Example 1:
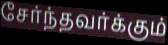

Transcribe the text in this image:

சேர்ந்தவர்க்கும்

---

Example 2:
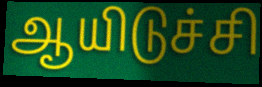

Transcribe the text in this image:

ஆயிடுச்சி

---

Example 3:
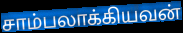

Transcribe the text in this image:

சாம்பலாக்கியவன்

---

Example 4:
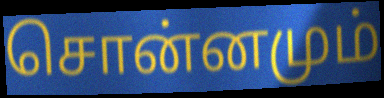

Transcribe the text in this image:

சொன்னமும்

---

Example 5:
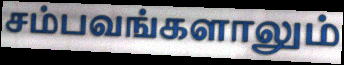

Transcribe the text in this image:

சம்பவங்களாலும்